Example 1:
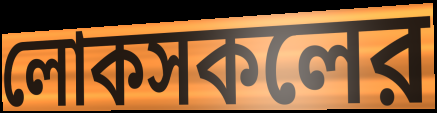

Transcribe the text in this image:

লোকসকলের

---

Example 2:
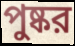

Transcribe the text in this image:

পুষ্কর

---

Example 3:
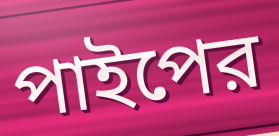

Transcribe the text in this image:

পাইপের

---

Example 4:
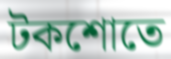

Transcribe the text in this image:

টকশোতে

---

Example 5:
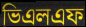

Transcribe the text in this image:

ভিএলএফ